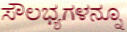
ಸೌಲಭ್ಯಗಳನ್ನೂ